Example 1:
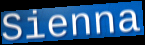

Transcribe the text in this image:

Sienna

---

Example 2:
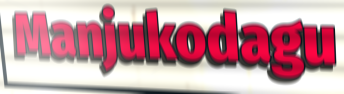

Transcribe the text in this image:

Manjukodagu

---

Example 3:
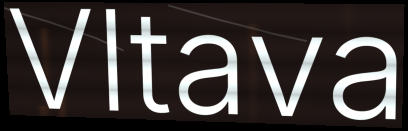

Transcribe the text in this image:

Vltava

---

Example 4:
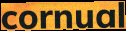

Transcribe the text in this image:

cornual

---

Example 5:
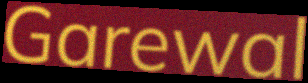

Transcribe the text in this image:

Garewal